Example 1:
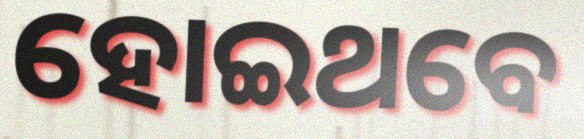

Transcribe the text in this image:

ହୋଇଥବେ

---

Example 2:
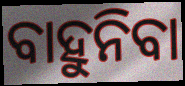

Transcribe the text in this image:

ବାହୁନିବା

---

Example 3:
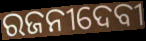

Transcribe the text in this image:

ରଜନୀଦେବୀ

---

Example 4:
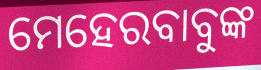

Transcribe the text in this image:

ମେହେରବାବୁଙ୍କ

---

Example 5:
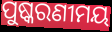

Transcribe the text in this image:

ପୁଷ୍କରଣୀମୟ